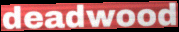
deadwood